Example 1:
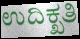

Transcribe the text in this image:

ಉದಿಕ್ಖತಿ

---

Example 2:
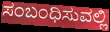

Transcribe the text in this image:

ಸಂಬಂಧಿಸುವಲ್ಲಿ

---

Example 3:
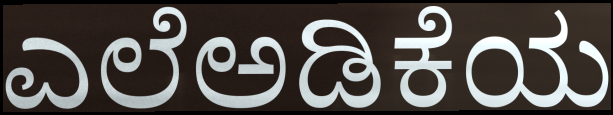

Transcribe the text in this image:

ಎಲೆಅಡಿಕೆಯ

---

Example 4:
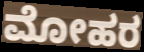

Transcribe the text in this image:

ಮೋಹರ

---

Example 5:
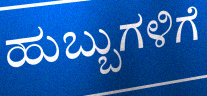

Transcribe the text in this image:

ಹುಬ್ಬುಗಳಿಗೆ